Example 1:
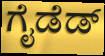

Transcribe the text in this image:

ಗೈಡೆಡ್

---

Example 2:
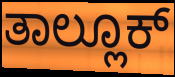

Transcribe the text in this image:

ತಾಲ್ಲೂಕ್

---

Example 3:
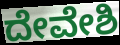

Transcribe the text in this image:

ದೇವೇಶಿ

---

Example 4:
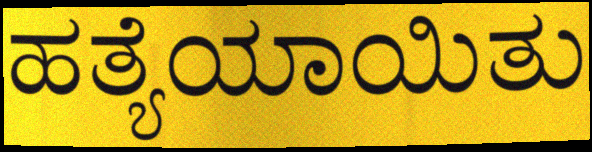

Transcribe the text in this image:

ಹತ್ಯೆಯಾಯಿತು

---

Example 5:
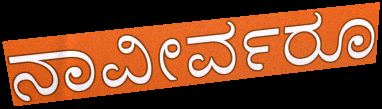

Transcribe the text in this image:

ನಾವೀರ್ವರೂ